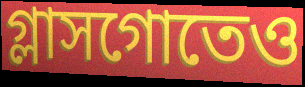
গ্লাসগোতেও